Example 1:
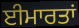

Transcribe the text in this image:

ਈਮਾਰਤਾਂ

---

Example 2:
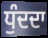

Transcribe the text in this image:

ਧੁੰਦਦਾ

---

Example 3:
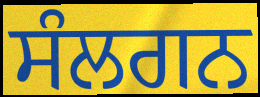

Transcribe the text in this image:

ਸੰਲਗਨ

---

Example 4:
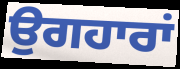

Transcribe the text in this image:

ਉਗਹਾਰਾਂ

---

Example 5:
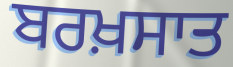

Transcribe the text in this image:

ਬਰਖ਼ਸਾਤ